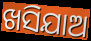
ଖସିଯାଅ